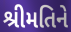
શ્રીમતિને